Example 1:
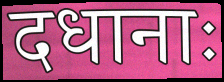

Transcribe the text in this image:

दधानाः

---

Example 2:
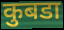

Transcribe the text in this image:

कुबडा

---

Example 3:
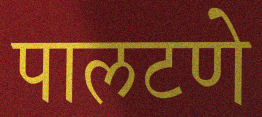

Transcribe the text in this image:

पालटणे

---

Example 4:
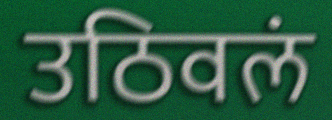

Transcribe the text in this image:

उठिवलं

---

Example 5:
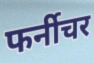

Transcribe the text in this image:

फर्नीचर